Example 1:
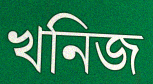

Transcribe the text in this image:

খনিজ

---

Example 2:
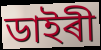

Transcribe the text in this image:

ডাইৰী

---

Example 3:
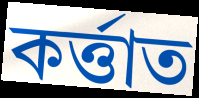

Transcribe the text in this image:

কৰ্ত্তাত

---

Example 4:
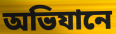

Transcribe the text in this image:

অভিযানে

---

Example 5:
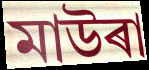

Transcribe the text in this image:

মাউৰা